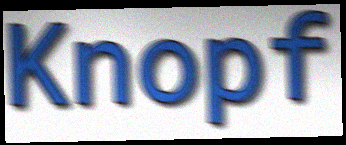
Knopf